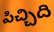
పిచ్చిది